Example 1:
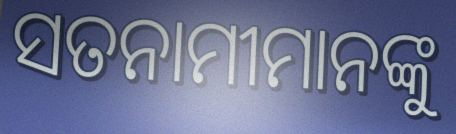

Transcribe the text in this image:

ସତନାମୀମାନଙ୍କୁ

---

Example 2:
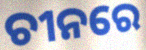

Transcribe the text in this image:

ଚୀନରେ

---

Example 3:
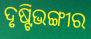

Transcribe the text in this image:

ଦୃଷ୍ଟିଭଙ୍ଗୀର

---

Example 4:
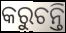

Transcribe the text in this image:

କରୁଚନ୍ତି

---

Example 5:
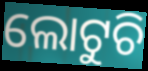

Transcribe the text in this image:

ଲୋଟୁଚି